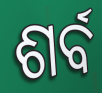
ଶର୍ବ